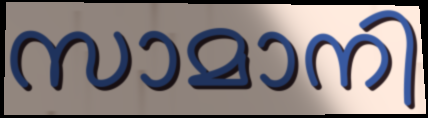
സാമാനി